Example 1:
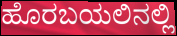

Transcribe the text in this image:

ಹೊರಬಯಲಿನಲ್ಲಿ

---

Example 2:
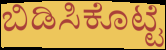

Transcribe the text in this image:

ಬಿಡಿಸಿಕೊಟ್ಟೆ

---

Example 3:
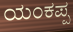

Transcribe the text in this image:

ಯಂಕಪ್ಪ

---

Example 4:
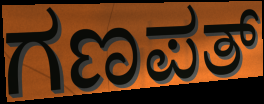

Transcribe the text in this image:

ಗಣಪತ್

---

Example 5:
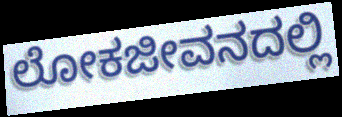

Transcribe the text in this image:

ಲೋಕಜೀವನದಲ್ಲಿ